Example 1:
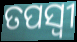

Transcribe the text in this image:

ତପସ୍ବୀ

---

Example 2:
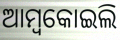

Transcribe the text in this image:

ଆମ୍ବକୋଇଲି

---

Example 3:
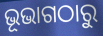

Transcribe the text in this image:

ଭୂଭାଗଠାରୁ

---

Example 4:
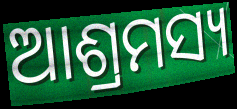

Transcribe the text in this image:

ଆଶ୍ରମସ୍ୟ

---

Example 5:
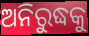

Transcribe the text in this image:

ଅନିରୁଦ୍ଧକୁ